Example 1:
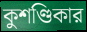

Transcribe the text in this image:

কুশণ্ডিকার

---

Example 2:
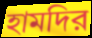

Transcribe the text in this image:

হামদির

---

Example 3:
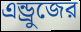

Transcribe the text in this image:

এন্ড্রুজের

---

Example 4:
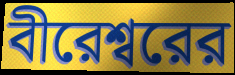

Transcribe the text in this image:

বীরেশ্বরের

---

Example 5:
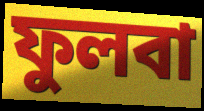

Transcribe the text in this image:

ফুলবা